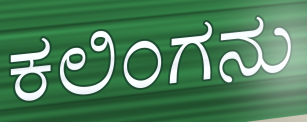
ಕಲಿಂಗನು